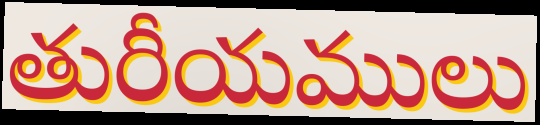
తురీయములు